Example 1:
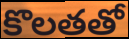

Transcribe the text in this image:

కొలతతో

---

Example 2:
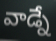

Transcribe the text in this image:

వాడ్నే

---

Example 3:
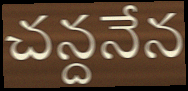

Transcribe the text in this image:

చన్దనేన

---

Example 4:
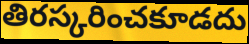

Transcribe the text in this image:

తిరస్కరించకూడదు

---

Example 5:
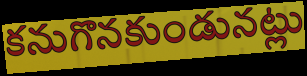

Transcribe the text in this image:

కనుగొనకుండునట్లు